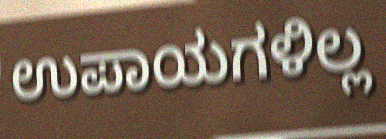
ಉಪಾಯಗಳಿಲ್ಲ